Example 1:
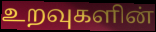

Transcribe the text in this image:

உறவுகளின்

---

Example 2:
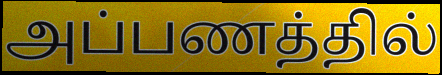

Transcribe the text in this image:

அப்பணத்தில்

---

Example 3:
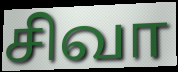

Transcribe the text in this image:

சிவா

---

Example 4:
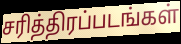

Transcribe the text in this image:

சரித்திரப்படங்கள்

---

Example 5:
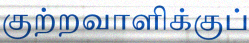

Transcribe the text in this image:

குற்றவாளிக்குப்